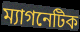
ম্যাগনেটিক